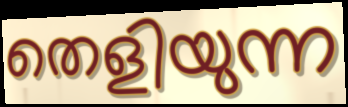
തെളിയുന്ന